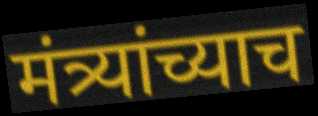
मंत्र्यांच्याच